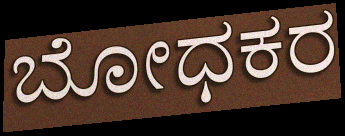
ಬೋಧಕರ